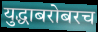
युद्धाबरोबरच